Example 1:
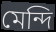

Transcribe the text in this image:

মেন্দি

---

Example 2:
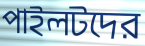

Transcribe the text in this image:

পাইলটদের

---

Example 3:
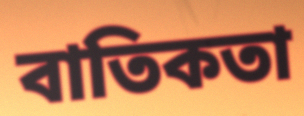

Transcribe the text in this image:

বাতিকতা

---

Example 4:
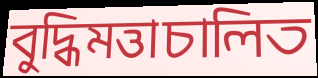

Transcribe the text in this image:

বুদ্ধিমত্তাচালিত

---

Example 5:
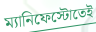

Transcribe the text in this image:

ম্যানিফেস্টোতেই